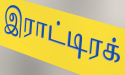
இராட்டிரக்